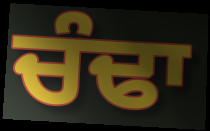
ਚੰਢਾ